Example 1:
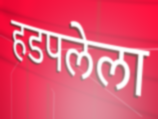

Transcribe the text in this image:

हडपलेला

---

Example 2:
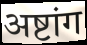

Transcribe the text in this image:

अष्टांग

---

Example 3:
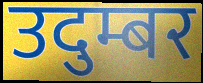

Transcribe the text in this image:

उदुम्बर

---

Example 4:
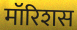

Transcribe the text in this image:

मॉरिशस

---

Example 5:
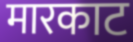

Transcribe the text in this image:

मारकाट